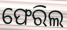
ଫେରିଲ